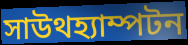
সাউথহ্যাম্পটন